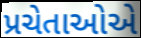
પ્રચેતાઓએ